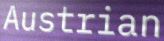
Austrian